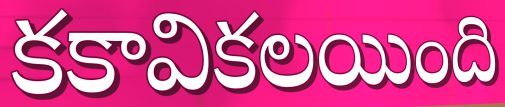
కకావికలయింది